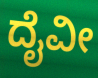
ದೈವೀ